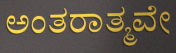
ಅಂತರಾತ್ಮವೇ